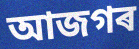
আজগৰ